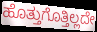
ಹೊತ್ತುಗೊತ್ತಿಲ್ಲದೇ